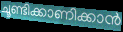
ചൂണ്ടിക്കാണിക്കാൻ